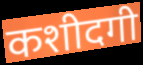
कशीदगी